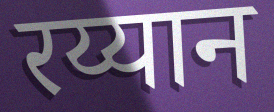
रय्यान